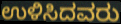
ಉಳಿಸಿದವರು